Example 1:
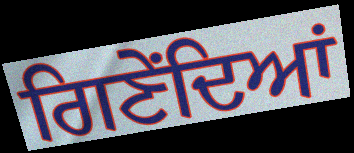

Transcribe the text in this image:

ਗਿਣੇਂਦਿਆਂ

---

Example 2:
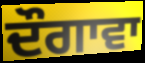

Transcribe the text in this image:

ਦੌਗਾਵਾ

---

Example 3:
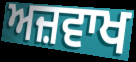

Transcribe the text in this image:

ਅਜ਼ਵਾਖ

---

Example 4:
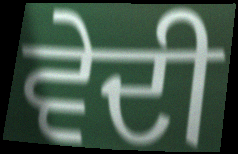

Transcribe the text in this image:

ਵੇਦੀ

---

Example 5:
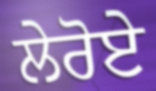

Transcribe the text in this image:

ਲੇਰੋਏ